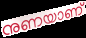
നുണയാണ്